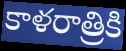
కాళరాత్రికి